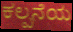
ಕಲ್ಪನೆಯ